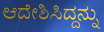
ಆದೇಶಿಸಿದ್ದನ್ನು